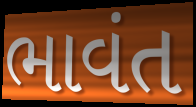
ભાવંત